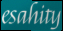
esahity